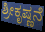
ಶ್ರೀಕೃಷ್ಣನೆ